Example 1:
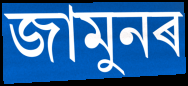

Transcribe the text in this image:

জামুনৰ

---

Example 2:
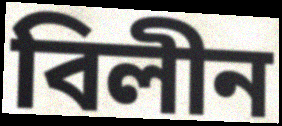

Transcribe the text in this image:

বিলীন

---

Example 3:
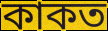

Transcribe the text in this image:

কাকত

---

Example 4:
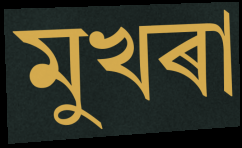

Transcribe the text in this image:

মুখৰা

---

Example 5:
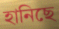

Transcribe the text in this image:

হানিছে